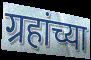
ग्रहांच्या